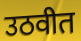
उठवीत